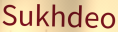
Sukhdeo